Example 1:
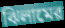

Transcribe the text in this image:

ঝিলামের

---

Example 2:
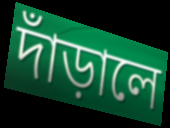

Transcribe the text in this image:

দাঁড়ালে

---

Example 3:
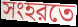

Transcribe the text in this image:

সংহরতে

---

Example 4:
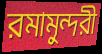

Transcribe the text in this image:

রমামুন্দরী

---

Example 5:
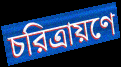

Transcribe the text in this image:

চরিত্রায়ণে